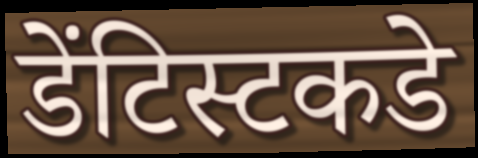
डेंटिस्टकडे